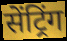
सेंट्रिंग